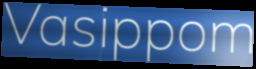
Vasippom